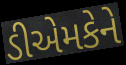
ડીએમકેને